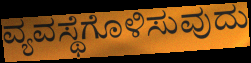
ವ್ಯವಸ್ಥೆಗೊಳಿಸುವುದು